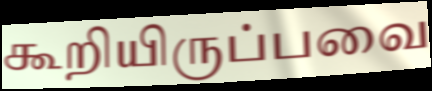
கூறியிருப்பவை